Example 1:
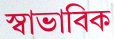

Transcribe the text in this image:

স্বাভাবিক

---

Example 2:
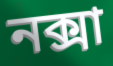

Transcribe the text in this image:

নক্সা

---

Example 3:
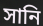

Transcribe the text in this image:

সানি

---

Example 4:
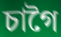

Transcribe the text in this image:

চাগৈ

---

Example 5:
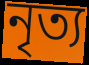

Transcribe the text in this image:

নৃত্য